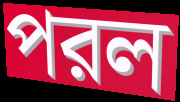
পরল